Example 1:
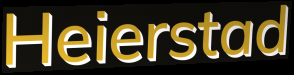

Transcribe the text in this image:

Heierstad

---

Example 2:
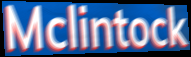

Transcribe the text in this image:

Mclintock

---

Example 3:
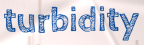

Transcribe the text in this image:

turbidity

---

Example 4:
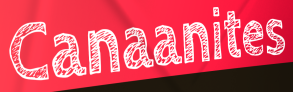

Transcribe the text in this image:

Canaanites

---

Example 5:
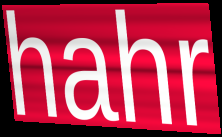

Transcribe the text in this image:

hahr